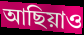
আছিয়াও